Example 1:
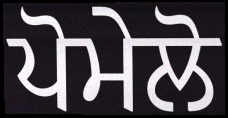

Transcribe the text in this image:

ਪੋਮੇਲੋ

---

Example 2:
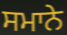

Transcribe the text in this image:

ਸਮਾਨੇ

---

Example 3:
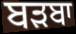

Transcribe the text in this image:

ਬੜਬਾ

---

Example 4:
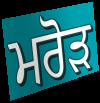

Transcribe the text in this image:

ਮਰੋੜ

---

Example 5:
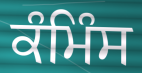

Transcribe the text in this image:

ਕੰਮਿੰਸ